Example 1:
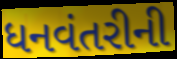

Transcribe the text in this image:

ધનવંતરીની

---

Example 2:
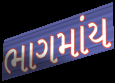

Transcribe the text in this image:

ભાગમાંય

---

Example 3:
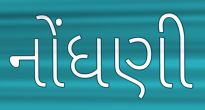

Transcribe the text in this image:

નોંધણી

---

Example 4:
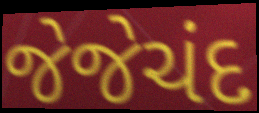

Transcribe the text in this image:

જેજેચંદ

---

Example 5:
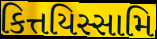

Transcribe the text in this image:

કિત્તયિસ્સામિ